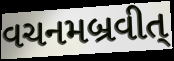
વચનમબ્રવીત્